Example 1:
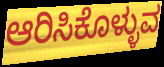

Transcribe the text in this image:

ಆರಿಸಿಕೊಳ್ಳುವ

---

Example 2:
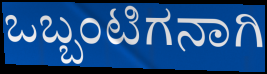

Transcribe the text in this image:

ಒಬ್ಬಂಟಿಗನಾಗಿ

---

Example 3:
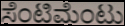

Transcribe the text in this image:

ಸೆಂಟಿಮೆಂಟು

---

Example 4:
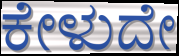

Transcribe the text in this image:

ಕೇಳುದೇ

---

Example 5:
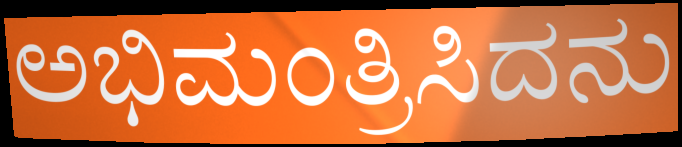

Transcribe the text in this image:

ಅಭಿಮಂತ್ರಿಸಿದನು